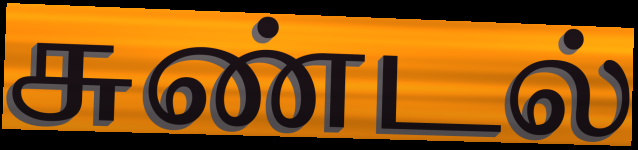
சுண்டல்